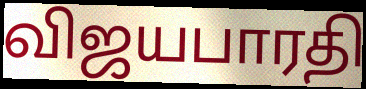
விஜயபாரதி